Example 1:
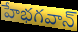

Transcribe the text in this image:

హేభగవాన్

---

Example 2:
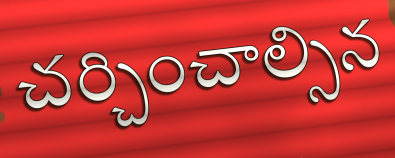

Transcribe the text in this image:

చర్చించాల్సిన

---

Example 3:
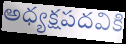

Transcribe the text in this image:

అధ్యక్షపదవికి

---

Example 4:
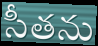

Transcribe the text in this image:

సీతను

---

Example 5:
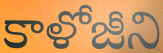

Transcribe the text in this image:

కాళోజీని